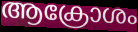
ആക്രോശം